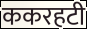
ककरहटी